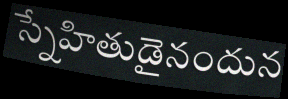
స్నేహితుడైనందున